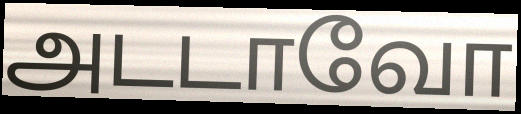
அடடாவோ